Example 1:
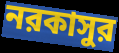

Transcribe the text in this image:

নরকাসুর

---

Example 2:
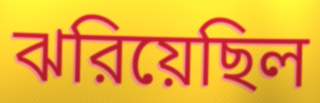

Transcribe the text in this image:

ঝরিয়েছিল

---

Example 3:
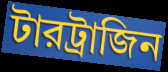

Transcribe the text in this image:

টারট্রাজিন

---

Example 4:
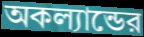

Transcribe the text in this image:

অকল্যান্ডের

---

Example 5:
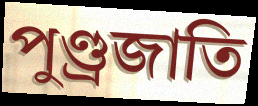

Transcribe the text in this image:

পুণ্ড্রজাতি